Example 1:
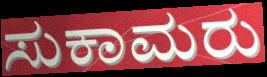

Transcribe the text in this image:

ಸುಕಾಮರು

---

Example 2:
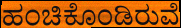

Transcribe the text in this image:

ಹಂಚಿಕೊಂಡಿರುವೆ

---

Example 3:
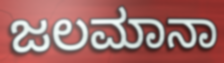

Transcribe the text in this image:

ಜಲಮಾನಾ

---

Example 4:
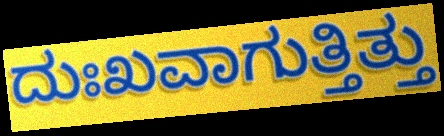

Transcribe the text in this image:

ದುಃಖವಾಗುತ್ತಿತ್ತು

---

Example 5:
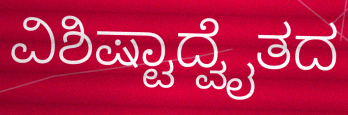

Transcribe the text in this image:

ವಿಶಿಷ್ಟಾದ್ವೈತದ